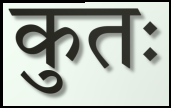
कुतः